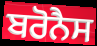
ਬਰੋਨੈਸ